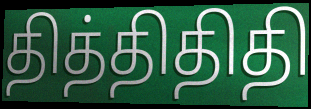
தித்திதிதி